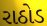
રાઠોડ